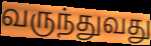
வருந்துவது